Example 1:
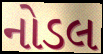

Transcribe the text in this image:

નોડલ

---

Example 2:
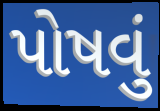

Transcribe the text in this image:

પોષવું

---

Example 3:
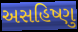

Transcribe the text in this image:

અસહિષ્ણુ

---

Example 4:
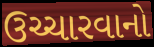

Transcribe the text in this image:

ઉચ્ચારવાનો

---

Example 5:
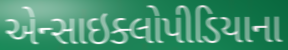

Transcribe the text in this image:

એન્સાઇક્લોપીડિયાના